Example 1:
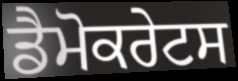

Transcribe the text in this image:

ਡੈਮੋਕਰੇਟਸ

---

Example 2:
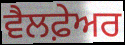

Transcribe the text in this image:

ਵੈਲਫ਼ੇਅਰ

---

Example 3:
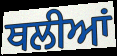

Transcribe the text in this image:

ਥਲੀਆਂ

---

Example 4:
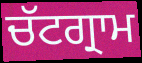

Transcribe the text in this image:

ਚੱਟਗ੍ਰਾਮ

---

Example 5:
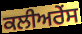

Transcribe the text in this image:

ਕਲੀਅਰੇਂਸ